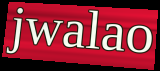
jwalao